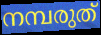
നമ്പരുത്